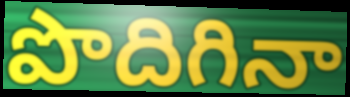
పొదిగినా